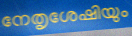
നേതൃശേഷിയും